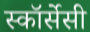
स्कॉर्सेसी